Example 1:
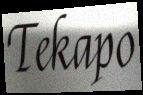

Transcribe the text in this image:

Tekapo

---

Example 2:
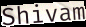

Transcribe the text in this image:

Shivam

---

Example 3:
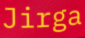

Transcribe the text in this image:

Jirga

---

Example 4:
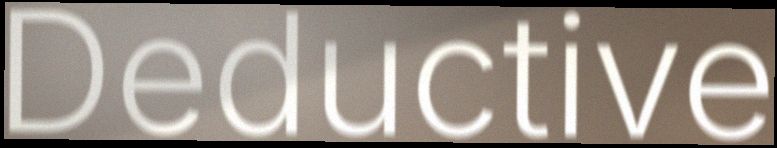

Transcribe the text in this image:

Deductive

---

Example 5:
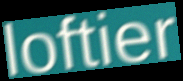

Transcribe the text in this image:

loftier